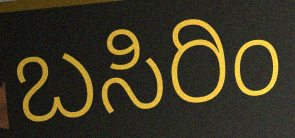
ಬಸಿರಿಂ